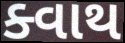
ક્વાથ